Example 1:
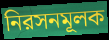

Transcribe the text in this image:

নিরসনমূলক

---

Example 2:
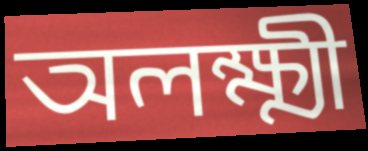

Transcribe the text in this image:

অলক্ষ্মী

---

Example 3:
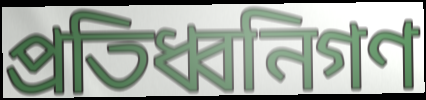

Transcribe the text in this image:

প্রতিধ্বনিগণ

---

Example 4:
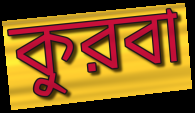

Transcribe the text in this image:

কুরবা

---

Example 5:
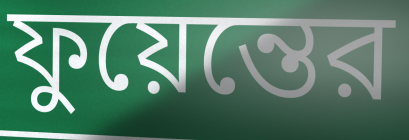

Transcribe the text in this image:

ফুয়েন্তের